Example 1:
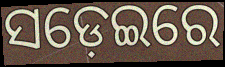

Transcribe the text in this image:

ସଡ଼େଇରେ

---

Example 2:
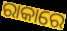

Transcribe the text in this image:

ରାକାରେ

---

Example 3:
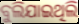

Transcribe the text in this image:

ବୁଲିଯାଇଥିଲି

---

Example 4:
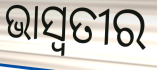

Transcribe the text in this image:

ଭାସ୍ଵତୀର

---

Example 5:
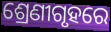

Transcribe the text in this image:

ଶ୍ରେଣୀଗୃହରେ